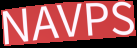
NAVPS